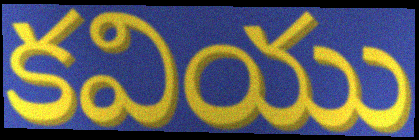
కవియు